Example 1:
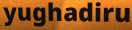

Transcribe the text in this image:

yughadiru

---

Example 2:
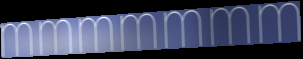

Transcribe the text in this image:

mmmmmmm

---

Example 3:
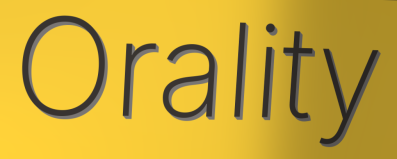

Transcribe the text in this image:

Orality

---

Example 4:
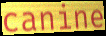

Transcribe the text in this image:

canine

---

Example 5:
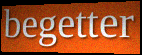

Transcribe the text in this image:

begetter